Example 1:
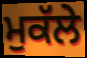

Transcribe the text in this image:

ਮੁਕੱਲੇ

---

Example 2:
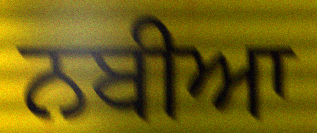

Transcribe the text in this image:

ਨਬੀਆ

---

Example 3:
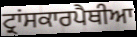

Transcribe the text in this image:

ਟ੍ਰਾਂਸਕਾਰਪੈਥੀਆ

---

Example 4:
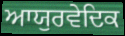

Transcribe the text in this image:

ਆਯੁਰਵੇਦਿਕ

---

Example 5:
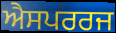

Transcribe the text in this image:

ਐਸਪਰਰਜ